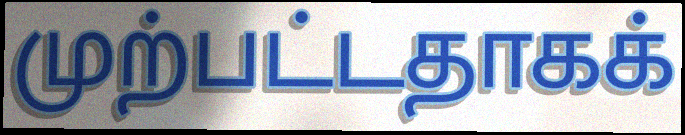
முற்பட்டதாகக்